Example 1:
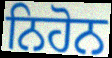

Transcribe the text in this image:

ਨਿਹੋਨ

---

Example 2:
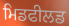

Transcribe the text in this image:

ਮਿਡਫੀਲਡ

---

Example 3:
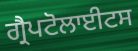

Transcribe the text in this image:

ਗ੍ਰੈਪਟੋਲਾਈਟਸ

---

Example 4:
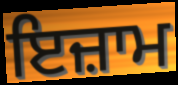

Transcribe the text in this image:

ਇਜ਼ਾਮ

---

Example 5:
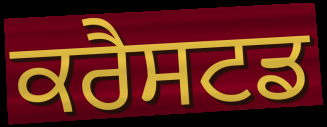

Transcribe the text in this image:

ਕਰੈਸਟਡ